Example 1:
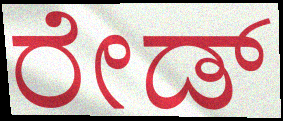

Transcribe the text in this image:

ರೇಡ್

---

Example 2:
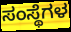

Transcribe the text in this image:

ಸಂಸ್ಥೆಗಳ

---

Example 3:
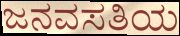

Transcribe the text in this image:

ಜನವಸತಿಯ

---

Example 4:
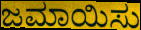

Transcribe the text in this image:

ಜಮಾಯಿಸು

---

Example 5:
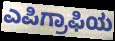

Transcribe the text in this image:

ಎಪಿಗ್ರಾಫಿಯ